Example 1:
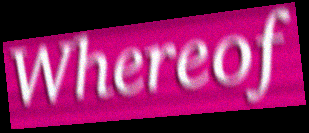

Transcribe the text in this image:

Whereof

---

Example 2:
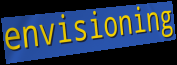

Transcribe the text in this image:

envisioning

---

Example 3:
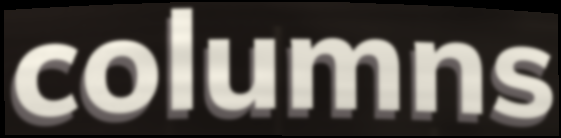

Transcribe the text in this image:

columns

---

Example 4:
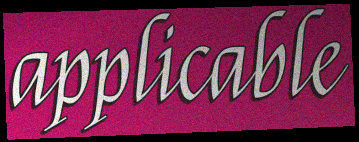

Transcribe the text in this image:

applicable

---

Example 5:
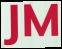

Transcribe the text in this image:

JM